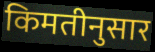
किमतीनुसार